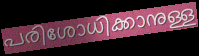
പരിശോധിക്കാനുള്ള